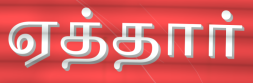
ஏத்தார்